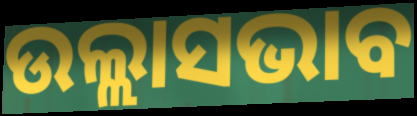
ଉଲ୍ଲାସଭାବ